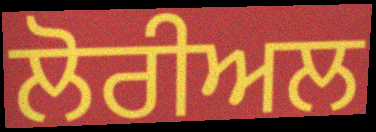
ਲੋਰੀਅਲ